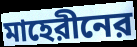
মাহেরীনের